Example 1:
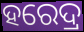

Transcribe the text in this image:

ହରେଦ୍ର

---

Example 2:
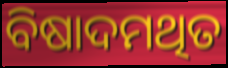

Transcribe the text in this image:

ବିଷାଦମଥିତ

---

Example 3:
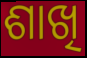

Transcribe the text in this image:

ଶାଖି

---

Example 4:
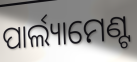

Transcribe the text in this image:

ପାର୍ଲ୍ୟାମେଣ୍ଟ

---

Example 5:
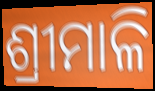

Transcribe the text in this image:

ଶ୍ରୀମାଳି